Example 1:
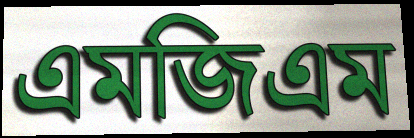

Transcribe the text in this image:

এমজিএম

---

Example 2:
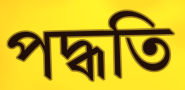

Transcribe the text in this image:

পদ্ধতি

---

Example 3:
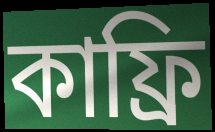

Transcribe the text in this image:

কাফ্রি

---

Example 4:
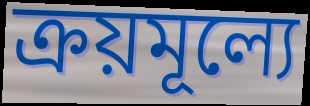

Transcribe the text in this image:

ক্রয়মূল্যে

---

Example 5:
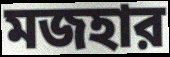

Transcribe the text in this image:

মজহার